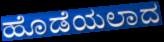
ಹೊಡೆಯಲಾದ